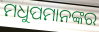
ମଧୁପମାନଙ୍କର